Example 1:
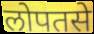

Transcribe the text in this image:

लोपतसे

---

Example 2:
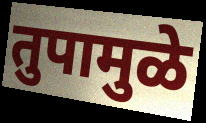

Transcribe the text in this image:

तुपामुळे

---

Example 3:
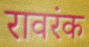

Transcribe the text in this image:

रावरंक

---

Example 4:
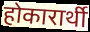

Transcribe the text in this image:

होकारार्थी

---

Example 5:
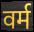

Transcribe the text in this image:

वर्म